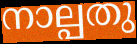
നാല്പതു